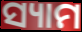
ସ୍ୟାମ